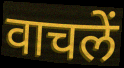
वाचलें